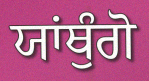
ਯਾਂਥੁੰਗੋ